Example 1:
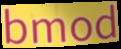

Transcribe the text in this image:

bmod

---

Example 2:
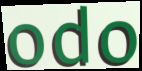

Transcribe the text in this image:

odo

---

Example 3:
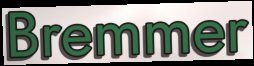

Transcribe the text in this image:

Bremmer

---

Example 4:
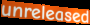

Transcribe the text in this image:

unreleased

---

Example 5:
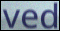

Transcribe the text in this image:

ved